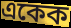
একেক